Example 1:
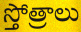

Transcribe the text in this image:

స్తోత్రాలు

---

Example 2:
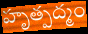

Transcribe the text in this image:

హృత్పద్మం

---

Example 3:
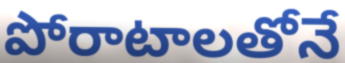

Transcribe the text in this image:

పోరాటాలతోనే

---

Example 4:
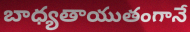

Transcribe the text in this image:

బాధ్యతాయుతంగానే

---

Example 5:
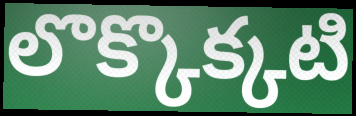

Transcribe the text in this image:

లొక్కొక్కటి